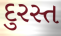
દુરસ્ત